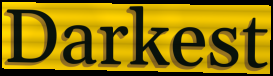
Darkest